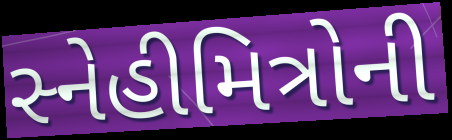
સ્નેહીમિત્રોની